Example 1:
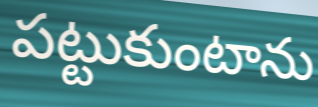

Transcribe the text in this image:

పట్టుకుంటాను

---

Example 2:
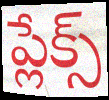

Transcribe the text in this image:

ప్లేక్స్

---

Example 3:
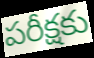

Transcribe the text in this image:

పరీక్షకు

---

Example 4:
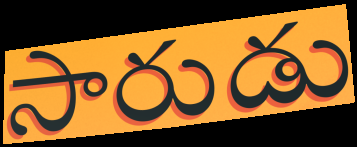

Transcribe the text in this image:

సారుడు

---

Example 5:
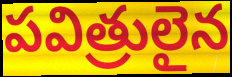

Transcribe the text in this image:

పవిత్రులైన